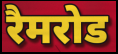
रैमरोड